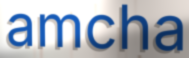
amcha